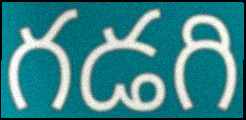
గడగి